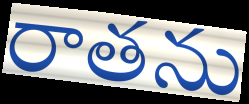
రాతను